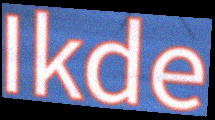
Ikde